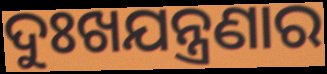
ଦୁଃଖଯନ୍ତ୍ରଣାର